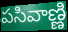
పసివాణ్ణి